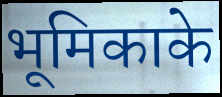
भूमिकाके